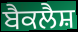
ਬੈਕਲੈਸ਼